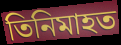
তিনিমাহত